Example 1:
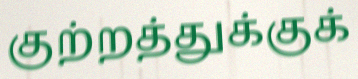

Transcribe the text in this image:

குற்றத்துக்குக்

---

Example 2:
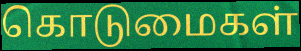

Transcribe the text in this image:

கொடுமைகள்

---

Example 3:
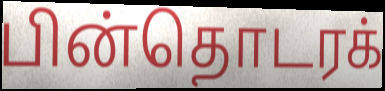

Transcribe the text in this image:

பின்தொடரக்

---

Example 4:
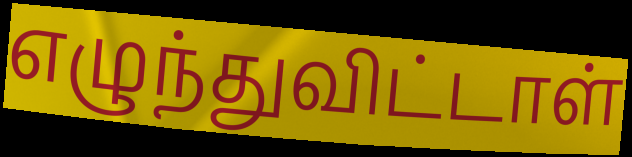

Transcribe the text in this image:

எழுந்துவிட்டாள்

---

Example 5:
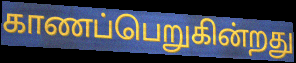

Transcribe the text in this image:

காணப்பெறுகின்றது